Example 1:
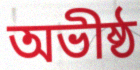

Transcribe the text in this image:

অভীষ্ঠ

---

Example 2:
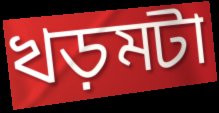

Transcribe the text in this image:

খড়মটা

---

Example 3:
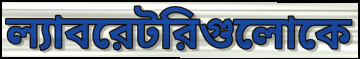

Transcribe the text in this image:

ল্যাবরেটরিগুলোকে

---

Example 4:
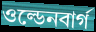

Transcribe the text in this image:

ওল্ডেনবার্গ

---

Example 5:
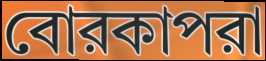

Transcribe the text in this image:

বোরকাপরা